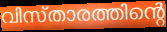
വിസ്‌താരത്തിന്റെ